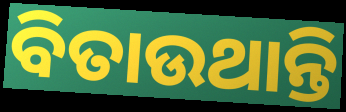
ବିତାଉଥାନ୍ତି